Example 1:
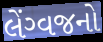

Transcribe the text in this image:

લેંગ્વજનો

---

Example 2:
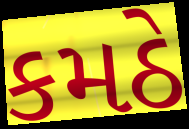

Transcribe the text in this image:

કમઠે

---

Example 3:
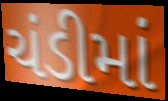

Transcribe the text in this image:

ચંડીમાં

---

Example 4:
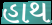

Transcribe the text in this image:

હાથ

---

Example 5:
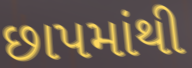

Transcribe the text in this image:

છાપમાંથી